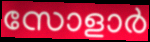
സോളാർ